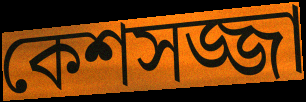
কেশসজ্জা